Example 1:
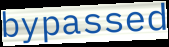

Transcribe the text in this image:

bypassed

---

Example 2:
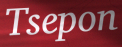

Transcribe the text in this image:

Tsepon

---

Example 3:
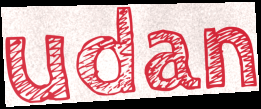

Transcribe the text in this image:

udan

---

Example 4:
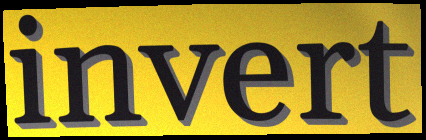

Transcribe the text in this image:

invert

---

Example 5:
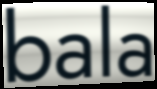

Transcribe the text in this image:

bala